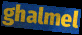
ghalmel